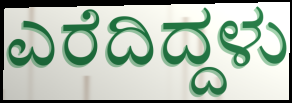
ಎರೆದಿದ್ದಳು